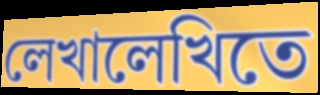
লেখালেখিতে